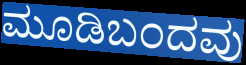
ಮೂಡಿಬಂದವು